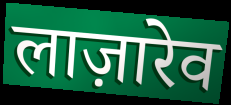
लाज़ारेव